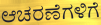
ಆಚರಣೆಗಳಿಗೆ